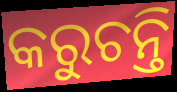
କରୁଚନ୍ତି